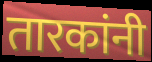
तारकांनी